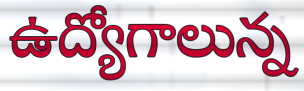
ఉద్యోగాలున్న